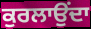
ਕੁਰਲਾਉਂਦਾ